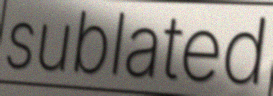
sublated